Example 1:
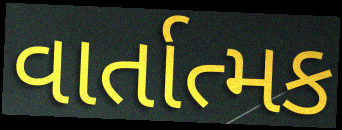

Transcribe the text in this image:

વાર્તાત્મક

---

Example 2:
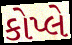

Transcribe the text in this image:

કોપ્લે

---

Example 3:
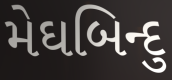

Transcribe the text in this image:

મેઘબિન્દુ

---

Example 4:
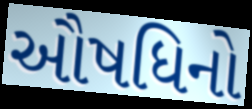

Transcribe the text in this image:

ઔષધિનો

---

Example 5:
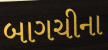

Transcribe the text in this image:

બાગચીના